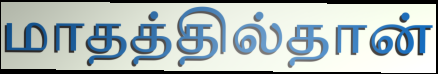
மாதத்தில்தான்